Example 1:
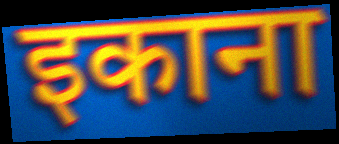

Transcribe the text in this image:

इकाना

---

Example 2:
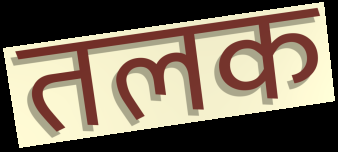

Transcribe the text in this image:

तलक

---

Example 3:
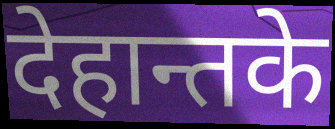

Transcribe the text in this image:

देहान्तके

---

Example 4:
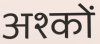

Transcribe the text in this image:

अश्कों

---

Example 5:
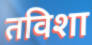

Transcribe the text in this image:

तविशा